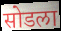
सोडला